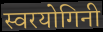
स्वरयोगिनी